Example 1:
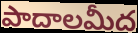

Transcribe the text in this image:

పాదాలమీద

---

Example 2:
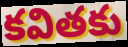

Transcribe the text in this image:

కవితకు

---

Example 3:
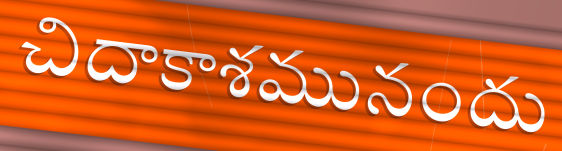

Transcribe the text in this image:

చిదాకాశమునందు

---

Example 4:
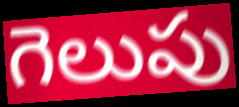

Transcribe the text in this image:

గెలుపు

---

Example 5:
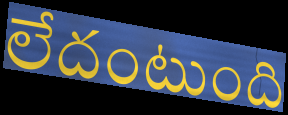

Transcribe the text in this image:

లేదంటుంది